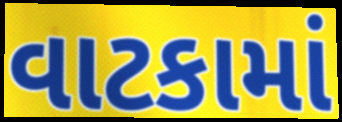
વાટકામાં